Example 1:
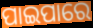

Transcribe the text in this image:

ପାଇପାରେ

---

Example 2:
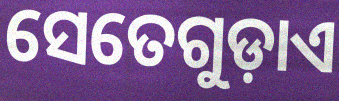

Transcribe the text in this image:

ସେତେଗୁଡ଼ାଏ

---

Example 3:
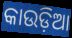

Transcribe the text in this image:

କାଉଡ଼ିଆ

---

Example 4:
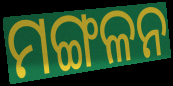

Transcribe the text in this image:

ମଙ୍ଗଳନ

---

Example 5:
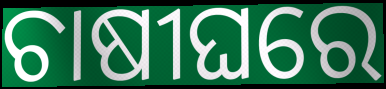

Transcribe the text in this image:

ଚାଷୀଘରେ